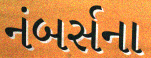
નંબર્સના